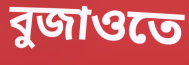
বুজাওতে